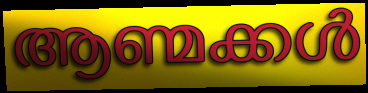
ആണ്മക്കൾ